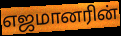
எஜமானரின்